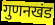
गुणनखंड